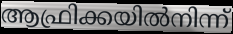
ആഫ്രിക്കയിൽനിന്ന്